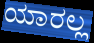
ಯಾರಲ್ಲ